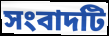
সংবাদটি